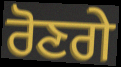
ਰੋਣਗੇ